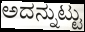
ಅದನ್ನುಟ್ಟು